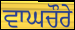
ਵਾਘਚੌਰੇ